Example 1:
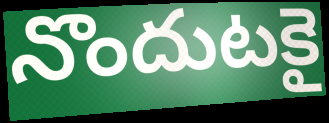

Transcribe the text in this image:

నొందుటకై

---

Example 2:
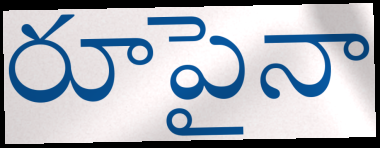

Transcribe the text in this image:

రూపైనా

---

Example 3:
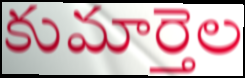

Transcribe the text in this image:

కుమార్తెల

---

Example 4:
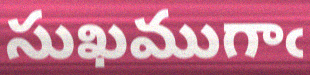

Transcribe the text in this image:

సుఖముగాఁ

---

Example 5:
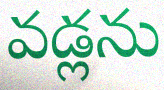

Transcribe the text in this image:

వడ్లను